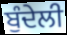
ਬੁੰਦੇਲੀ